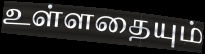
உள்ளதையும்